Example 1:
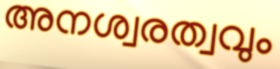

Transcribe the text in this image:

അനശ്വരത്വവും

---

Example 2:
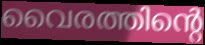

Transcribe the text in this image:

വൈരത്തിന്റെ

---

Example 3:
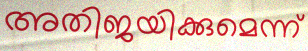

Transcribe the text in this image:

അതിജയിക്കുമെന്ന്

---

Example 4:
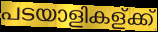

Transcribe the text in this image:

പടയാളികള്ക്ക്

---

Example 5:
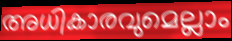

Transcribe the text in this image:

അധികാരവുമെല്ലാം